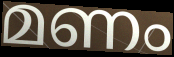
മണം